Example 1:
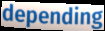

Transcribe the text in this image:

depending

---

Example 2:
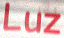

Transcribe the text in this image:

Luz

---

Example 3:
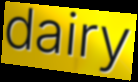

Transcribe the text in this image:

dairy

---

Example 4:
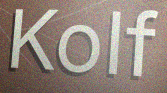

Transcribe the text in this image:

Kolf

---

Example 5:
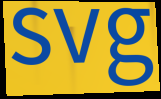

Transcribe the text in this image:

svg